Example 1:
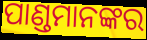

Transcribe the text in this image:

ପାଣ୍ଡମାନଙ୍କର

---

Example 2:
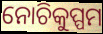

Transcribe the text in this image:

ନୋଚିକୁପ୍ପମ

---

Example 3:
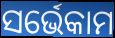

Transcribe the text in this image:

ସର୍ଭେକାମ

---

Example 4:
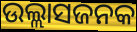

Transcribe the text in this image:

ଉଲ୍ଲାସଜନକ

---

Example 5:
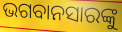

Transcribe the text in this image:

ଭଗବାନସାରଙ୍କୁ